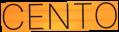
CENTO